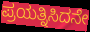
ಪ್ರಯತ್ನಿಸಿದನೇ